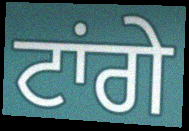
ਟਾਂਗੇ